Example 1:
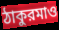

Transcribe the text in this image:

ঠাকুরমাও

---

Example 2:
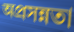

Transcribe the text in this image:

অপ্রসন্নতা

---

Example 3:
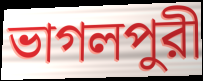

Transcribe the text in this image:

ভাগলপুরী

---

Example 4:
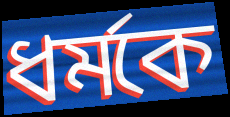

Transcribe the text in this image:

ধর্মকে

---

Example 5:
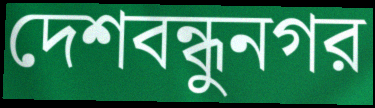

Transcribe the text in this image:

দেশবন্ধুনগর